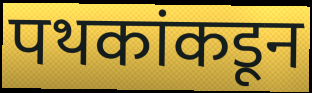
पथकांकडून